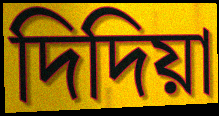
দিদিয়া